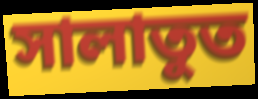
সালাতুত